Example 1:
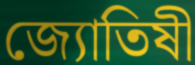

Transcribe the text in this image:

জ্যোতিষী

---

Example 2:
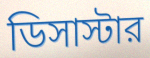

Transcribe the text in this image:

ডিসাস্টার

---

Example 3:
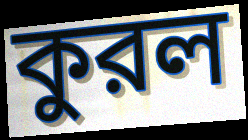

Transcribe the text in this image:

কুরল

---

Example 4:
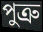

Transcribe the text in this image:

পুত্রু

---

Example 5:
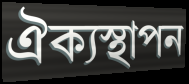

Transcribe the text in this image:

ঐক্যস্থাপন